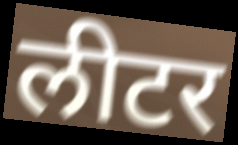
लीटर